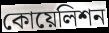
কোয়েলিশন